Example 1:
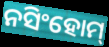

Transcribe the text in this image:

ନସିଂହୋମ୍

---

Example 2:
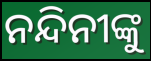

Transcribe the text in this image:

ନନ୍ଦିନୀଙ୍କୁ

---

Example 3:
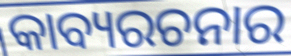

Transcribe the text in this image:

କାବ୍ୟରଚନାର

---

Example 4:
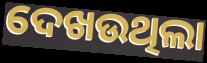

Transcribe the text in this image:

ଦେଖଉଥିଲା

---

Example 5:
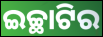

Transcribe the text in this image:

ଇଚ୍ଛାଟିର